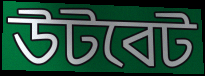
উটবেট